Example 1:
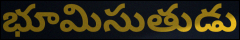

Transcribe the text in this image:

భూమిసుతుడు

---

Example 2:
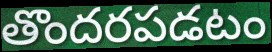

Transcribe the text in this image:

తొందరపడటం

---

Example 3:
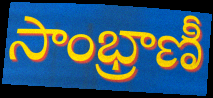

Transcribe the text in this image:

సాంభ్రాణీ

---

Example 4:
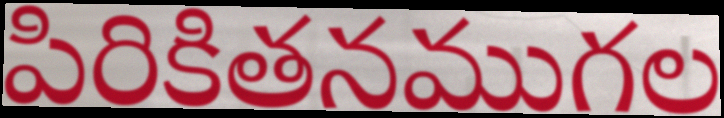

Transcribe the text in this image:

పిరికితనముగల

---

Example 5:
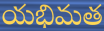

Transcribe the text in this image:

యభిమత